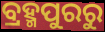
ବ୍ରହ୍ମପୁରରୁ